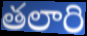
తలారి